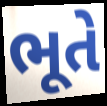
ભૂતે